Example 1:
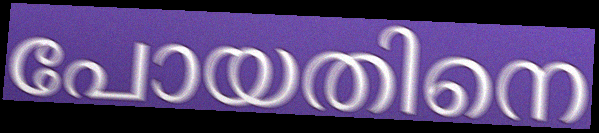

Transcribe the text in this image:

പോയതിനെ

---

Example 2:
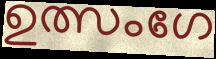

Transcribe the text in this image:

ഉത്സംഗേ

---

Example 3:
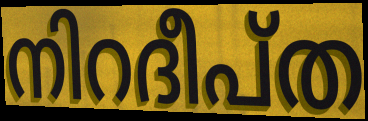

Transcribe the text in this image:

നിറദീപ്ത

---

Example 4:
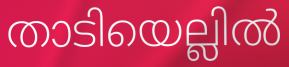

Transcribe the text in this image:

താടിയെല്ലിൽ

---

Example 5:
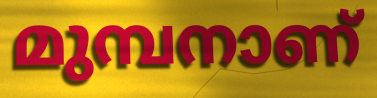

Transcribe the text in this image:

മുമ്പനാണ്